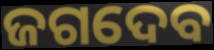
ଜଗଦେବ